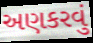
અણકરવું